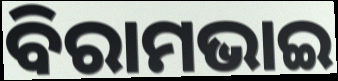
ବିରାମଭାଇ